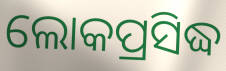
ଲୋକପ୍ରସିଦ୍ଧ